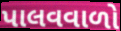
પાલવવાળો